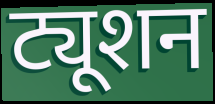
ट्यूशन